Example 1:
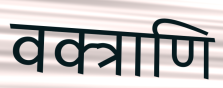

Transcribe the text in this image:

वक्त्राणि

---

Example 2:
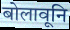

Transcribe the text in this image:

बोलावूनि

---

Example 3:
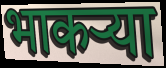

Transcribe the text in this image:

भाकर्‍या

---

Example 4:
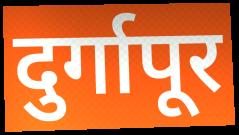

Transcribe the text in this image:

दुर्गापूर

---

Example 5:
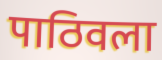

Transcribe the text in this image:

पाठिवला